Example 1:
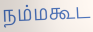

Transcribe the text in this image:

நம்மகூட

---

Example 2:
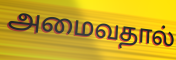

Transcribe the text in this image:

அமைவதால்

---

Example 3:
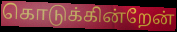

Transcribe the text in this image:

கொடுக்கின்றேன்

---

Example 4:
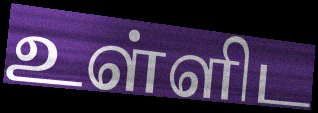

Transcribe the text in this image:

உள்ளிட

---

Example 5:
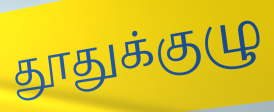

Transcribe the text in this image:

தூதுக்குழு